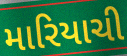
મારિયાચી